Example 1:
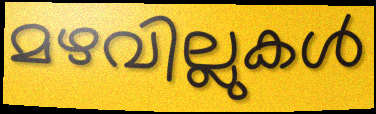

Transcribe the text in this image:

മഴവില്ലുകൾ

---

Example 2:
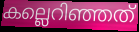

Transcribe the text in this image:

കല്ലെറിഞ്ഞത്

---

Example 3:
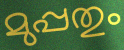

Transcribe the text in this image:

മുപ്പതും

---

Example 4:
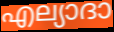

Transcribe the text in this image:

എല്യാദാ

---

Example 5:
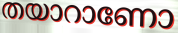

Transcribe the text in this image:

തയാറാണോ